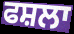
ਫਸ਼ਲਾ